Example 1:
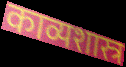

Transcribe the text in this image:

काव्यशास्त्र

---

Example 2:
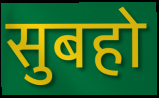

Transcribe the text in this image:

सुबहो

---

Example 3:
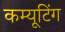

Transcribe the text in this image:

कम्यूटिंग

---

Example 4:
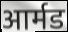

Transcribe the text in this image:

आर्मड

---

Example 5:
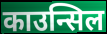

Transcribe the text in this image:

काउन्सिल